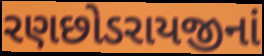
રણછોડરાયજીનાં